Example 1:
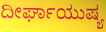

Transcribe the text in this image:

ದೀರ್ಘಾಯುಷ್ಯ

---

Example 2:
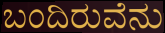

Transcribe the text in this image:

ಬಂದಿರುವೆನು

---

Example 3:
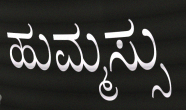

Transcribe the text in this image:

ಹುಮ್ಮಸ್ಸು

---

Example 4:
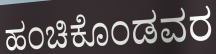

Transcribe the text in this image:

ಹಂಚಿಕೊಂಡವರ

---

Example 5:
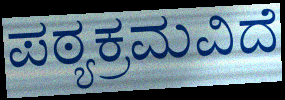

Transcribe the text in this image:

ಪಠ್ಯಕ್ರಮವಿದೆ